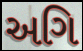
અગિ